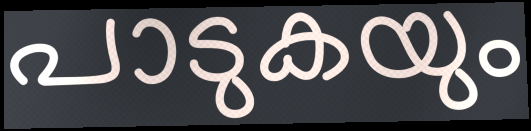
പാടുകയും